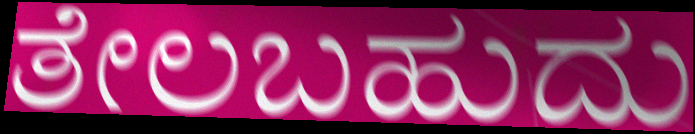
ತೇಲಬಹುದು